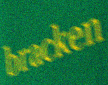
bracken